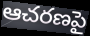
ఆచరణపై